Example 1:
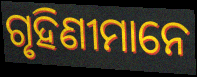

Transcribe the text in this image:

ଗୃହିଣୀମାନେ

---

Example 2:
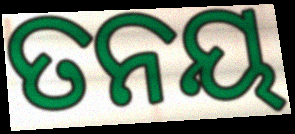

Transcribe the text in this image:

ତନୟ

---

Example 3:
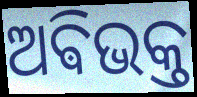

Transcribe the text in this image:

ଅଵିଭକ୍ତ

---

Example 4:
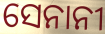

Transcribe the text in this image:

ସେନାନୀ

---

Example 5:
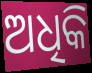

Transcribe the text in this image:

ଅଧିକି